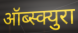
ऑब्स्क्युरा